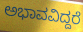
ಅಭಾವವಿದ್ದರೆ